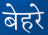
बेहरे